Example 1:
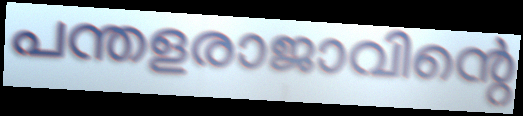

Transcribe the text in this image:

പന്തളരാജാവിന്റെ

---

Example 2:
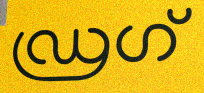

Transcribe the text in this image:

ഡ്രഗ്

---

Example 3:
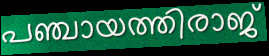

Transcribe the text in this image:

പഞ്ചായത്തിരാജ്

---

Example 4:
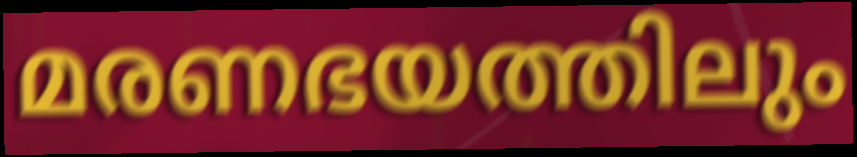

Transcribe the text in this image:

മരണഭയത്തിലും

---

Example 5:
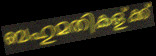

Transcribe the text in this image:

ബഹുമതികള്ക്ക്